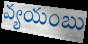
వ్యయంబు